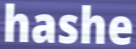
hashe